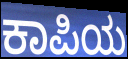
ಕಾಪಿಯ